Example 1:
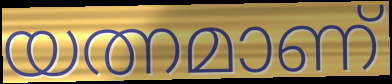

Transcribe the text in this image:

യത്നമാണ്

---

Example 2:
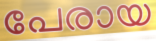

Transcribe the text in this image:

പേരായ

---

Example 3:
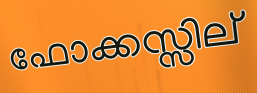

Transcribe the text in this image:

ഫോക്കസ്സില്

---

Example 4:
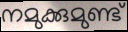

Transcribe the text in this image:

നമുക്കുമുണ്ട്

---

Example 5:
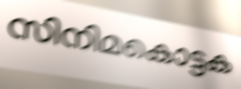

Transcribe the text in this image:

സിനിമകൊട്ടക